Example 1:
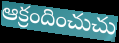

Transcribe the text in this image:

ఆక్రందించుచు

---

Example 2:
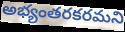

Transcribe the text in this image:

అభ్యంతరకరమని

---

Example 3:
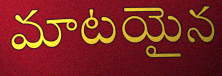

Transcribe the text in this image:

మాటయైన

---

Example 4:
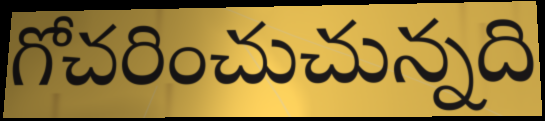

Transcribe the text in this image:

గోచరించుచున్నది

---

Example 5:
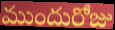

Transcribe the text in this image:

ముందురోజు